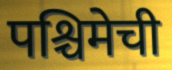
पश्चिमेची